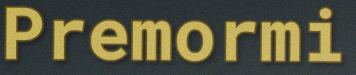
Premormi